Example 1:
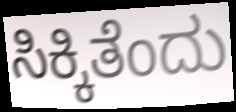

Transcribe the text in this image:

ಸಿಕ್ಕಿತೆಂದು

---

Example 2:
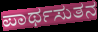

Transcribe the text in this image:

ಪಾರ್ಥಸುತನ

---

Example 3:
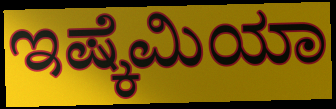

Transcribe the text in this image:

ಇಷ್ಕೆಮಿಯಾ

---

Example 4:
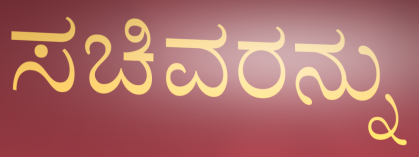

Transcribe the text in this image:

ಸಚಿವರನ್ನು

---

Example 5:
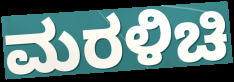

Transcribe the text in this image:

ಮರಳಿಚಿ